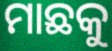
ମାଛକୁ